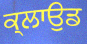
ਕ੍ਲਾਉਡ